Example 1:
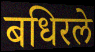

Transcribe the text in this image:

बधिरले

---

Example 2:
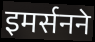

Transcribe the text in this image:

इमर्सनने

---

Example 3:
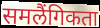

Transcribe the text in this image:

समलैंगिकता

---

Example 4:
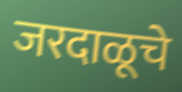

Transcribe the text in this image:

जरदाळूचे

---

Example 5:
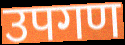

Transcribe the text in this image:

उपगण